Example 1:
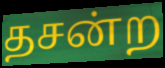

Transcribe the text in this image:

தசன்ற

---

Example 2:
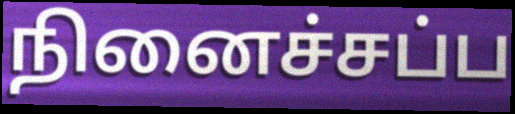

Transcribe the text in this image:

நினைச்சப்ப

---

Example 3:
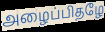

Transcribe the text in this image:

அழைப்பிதழே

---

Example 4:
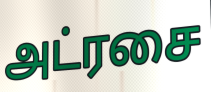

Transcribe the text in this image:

அட்ரசை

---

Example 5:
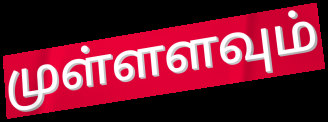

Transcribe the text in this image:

முள்ளளவும்